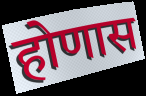
होणास